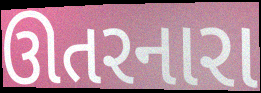
ઊતરનારા